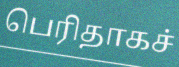
பெரிதாகச்